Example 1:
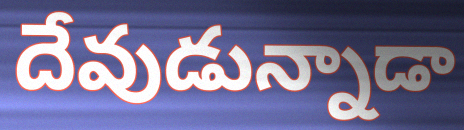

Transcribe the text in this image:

దేవుడున్నాడా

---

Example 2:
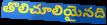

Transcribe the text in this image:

తొలిచూలియైనది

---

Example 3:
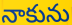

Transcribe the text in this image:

నాకును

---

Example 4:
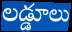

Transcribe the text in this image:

లడ్డూలు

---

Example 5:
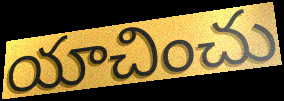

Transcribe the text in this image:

యాచించు